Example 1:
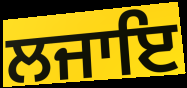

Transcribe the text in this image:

ਲਜਾਇ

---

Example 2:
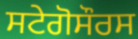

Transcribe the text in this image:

ਸਟੇਗੋਸੌਰਸ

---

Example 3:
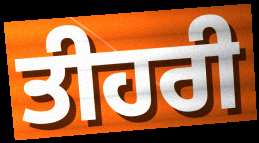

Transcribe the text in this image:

ਤੀਹਰੀ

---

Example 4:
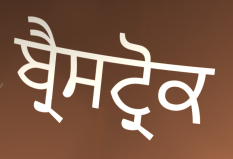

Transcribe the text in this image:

ਬ੍ਰੈਸਟ੍ਰੋਕ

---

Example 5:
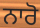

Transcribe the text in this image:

ਨਾਰੋ